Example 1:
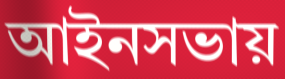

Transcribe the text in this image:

আইনসভায়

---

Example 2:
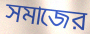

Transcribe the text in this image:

সমাজের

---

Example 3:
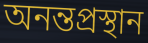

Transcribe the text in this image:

অনন্তপ্রস্থান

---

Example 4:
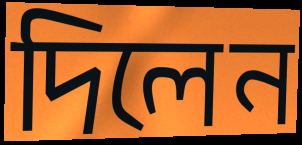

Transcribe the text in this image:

দিলেন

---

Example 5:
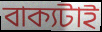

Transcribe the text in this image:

বাক্যটাই